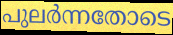
പുലർന്നതോടെ